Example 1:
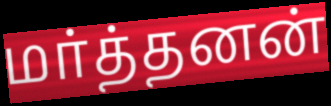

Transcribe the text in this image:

மர்த்தனன்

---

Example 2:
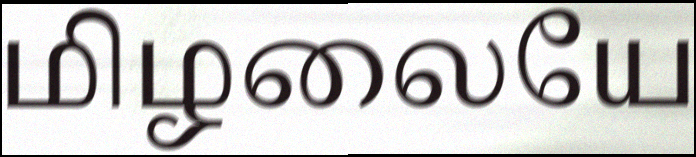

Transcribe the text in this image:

மிழலையே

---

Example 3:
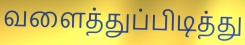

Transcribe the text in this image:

வளைத்துப்பிடித்து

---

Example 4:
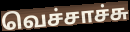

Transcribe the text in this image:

வெச்சாச்சு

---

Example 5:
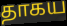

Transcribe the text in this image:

தாகய